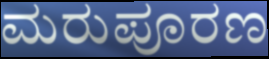
ಮರುಪೂರಣ